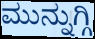
ಮುನ್ನುಗ್ಗಿ